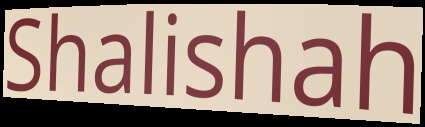
Shalishah